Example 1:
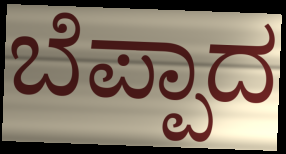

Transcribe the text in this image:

ಬೆಪ್ಪಾದ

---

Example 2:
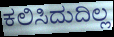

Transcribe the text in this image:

ಕಲಿಸಿದುದಿಲ್ಲ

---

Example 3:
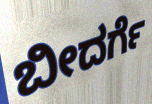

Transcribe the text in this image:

ಬೀದರ್ಗೆ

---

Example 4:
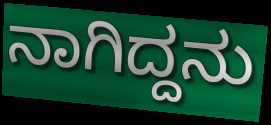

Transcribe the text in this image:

ನಾಗಿದ್ದನು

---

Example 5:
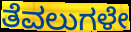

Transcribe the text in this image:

ತೆವಲುಗಳೇ